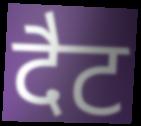
दैट